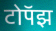
टोपॅझ